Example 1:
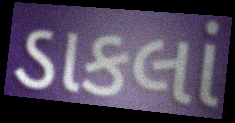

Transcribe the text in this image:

ડાકલાં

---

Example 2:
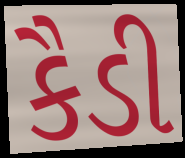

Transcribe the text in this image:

કૈડી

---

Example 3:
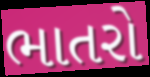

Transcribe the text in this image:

ભાતરો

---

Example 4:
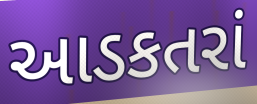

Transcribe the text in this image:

આડકતરાં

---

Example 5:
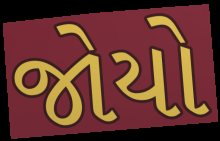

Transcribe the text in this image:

જોયો